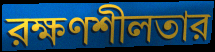
রক্ষণশীলতার